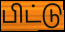
பிட்டு